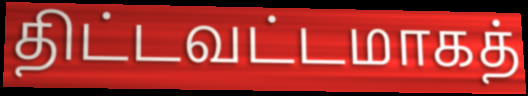
திட்டவட்டமாகத்